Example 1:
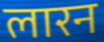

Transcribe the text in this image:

लारन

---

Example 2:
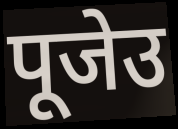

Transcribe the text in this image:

पूजेउ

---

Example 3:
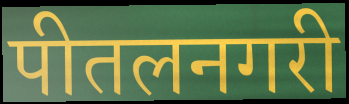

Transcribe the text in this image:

पीतलनगरी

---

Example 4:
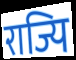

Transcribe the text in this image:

राज्यि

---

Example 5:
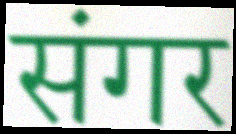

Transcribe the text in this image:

संगर